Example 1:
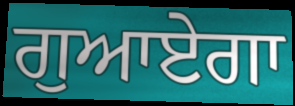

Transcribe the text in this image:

ਗੁਆਏਗਾ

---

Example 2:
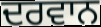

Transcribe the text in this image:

ਦਰਵਾਨ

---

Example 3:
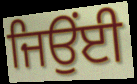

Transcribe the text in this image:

ਜਿਉਂਈ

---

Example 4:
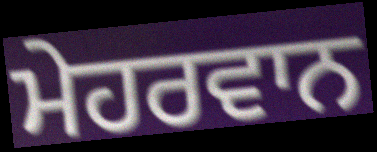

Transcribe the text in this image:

ਮੇਹਰਵਾਨ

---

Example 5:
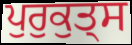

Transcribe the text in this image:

ਪੁਰੁਕੁਤ੍ਸ